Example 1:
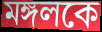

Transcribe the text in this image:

মঙ্গলকে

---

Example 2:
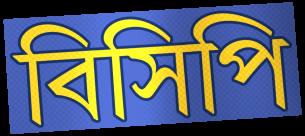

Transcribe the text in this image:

বিসিপি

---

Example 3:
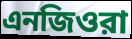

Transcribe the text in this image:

এনজিওরা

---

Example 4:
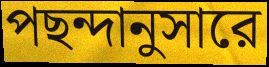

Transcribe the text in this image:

পছন্দানুসারে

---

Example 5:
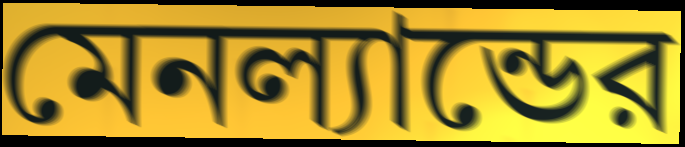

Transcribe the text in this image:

মেনল্যান্ডের